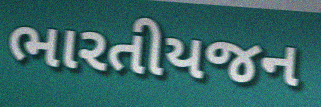
ભારતીયજન